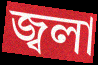
জ্বলা